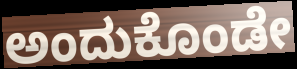
ಅಂದುಕೊಂಡೇ